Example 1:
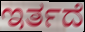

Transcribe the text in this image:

ಇರ್ತದೆ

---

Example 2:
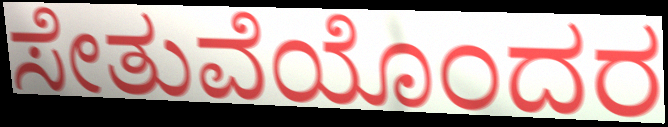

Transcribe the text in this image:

ಸೇತುವೆಯೊಂದರ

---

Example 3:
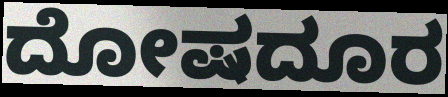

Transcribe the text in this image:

ದೋಷದೂರ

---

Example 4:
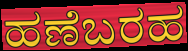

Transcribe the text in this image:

ಹಣೆಬರಹ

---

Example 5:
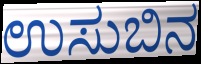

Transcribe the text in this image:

ಉಸುಬಿನ